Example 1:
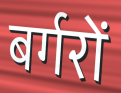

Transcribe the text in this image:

बर्गरों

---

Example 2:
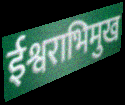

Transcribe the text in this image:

ईश्वराभिमुख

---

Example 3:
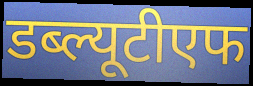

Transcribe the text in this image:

डब्ल्यूटीएफ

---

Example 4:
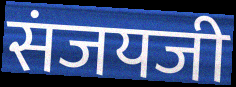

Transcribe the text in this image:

संजयजी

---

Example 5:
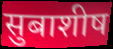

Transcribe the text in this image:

सुबाशीष